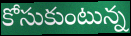
కోసుకుంటున్న